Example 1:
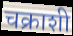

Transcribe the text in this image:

चक्राशी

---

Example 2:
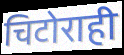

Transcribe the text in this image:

चिटोराही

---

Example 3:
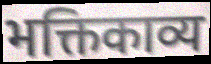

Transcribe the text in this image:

भक्तिकाव्य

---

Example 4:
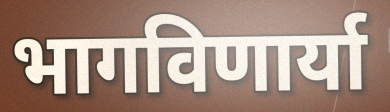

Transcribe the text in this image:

भागविणार्या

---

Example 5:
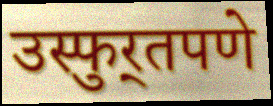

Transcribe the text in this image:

उस्फुर्तपणे